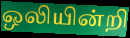
ஒலியின்றி